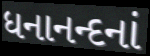
ધનાનન્દનાં